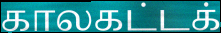
காலகட்டக்